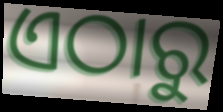
ଏଠାରୁ